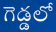
గెడ్డలో